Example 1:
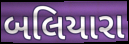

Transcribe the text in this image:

બલિયારા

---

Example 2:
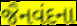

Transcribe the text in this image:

જૈનવંદના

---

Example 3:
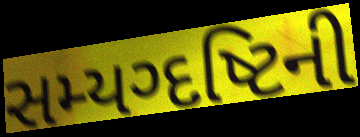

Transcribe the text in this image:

સમ્યગ્દષ્ટિની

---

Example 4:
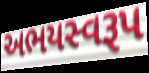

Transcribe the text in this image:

અભયસ્વરૂપ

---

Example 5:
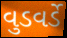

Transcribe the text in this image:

વુડવર્ડે